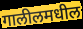
गालीलमधील